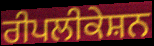
ਰੀਪਲੀਕੇਸ਼ਨ